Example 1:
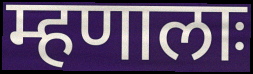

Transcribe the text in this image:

म्हणालाः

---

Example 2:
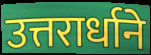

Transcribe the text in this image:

उत्तरार्धाने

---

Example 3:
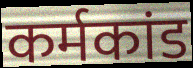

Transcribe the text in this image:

कर्मकांड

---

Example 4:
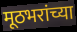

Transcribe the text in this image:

मूठभरांच्या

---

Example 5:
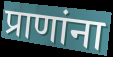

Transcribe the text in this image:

प्राणांना